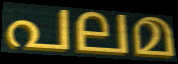
പലമ